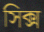
সিক্স